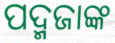
ପଦ୍ମଜାଙ୍କ